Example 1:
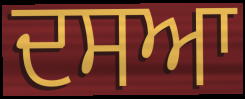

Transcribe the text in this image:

ਦਸਆ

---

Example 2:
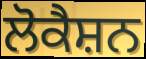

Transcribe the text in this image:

ਲੋਕੈਸ਼ਨ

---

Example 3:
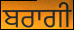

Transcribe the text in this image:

ਬਰਾਗੀ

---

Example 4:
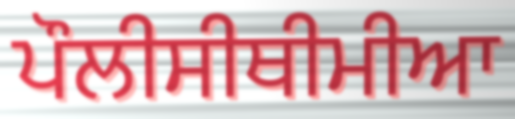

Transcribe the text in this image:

ਪੌਲੀਸੀਥੀਮੀਆ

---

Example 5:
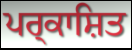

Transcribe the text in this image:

ਪਰ੍ਕਾਸ਼ਿਤ